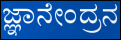
ಜ್ಞಾನೇಂದ್ರನ